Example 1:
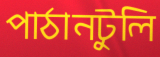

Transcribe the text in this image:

পাঠানটুলি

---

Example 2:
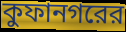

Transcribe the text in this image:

কুফানগরের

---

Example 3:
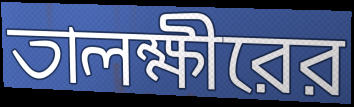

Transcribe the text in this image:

তালক্ষীরের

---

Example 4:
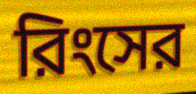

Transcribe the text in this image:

রিংসের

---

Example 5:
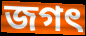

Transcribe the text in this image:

জগৎ